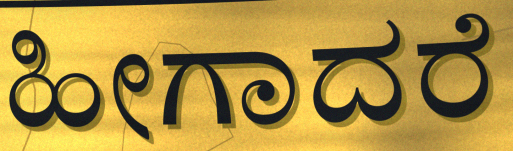
ಹೀಗಾದರೆ